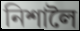
নিশালৈ